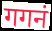
गगनं